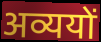
अव्ययों